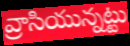
వ్రాసియున్నట్టు